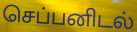
செப்பனிடல்